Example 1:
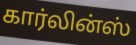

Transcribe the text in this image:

கார்லின்ஸ்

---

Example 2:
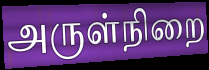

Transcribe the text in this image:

அருள்நிறை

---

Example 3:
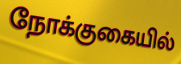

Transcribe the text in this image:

நோக்குகையில்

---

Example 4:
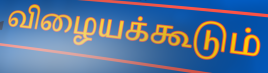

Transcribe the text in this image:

விழையக்கூடும்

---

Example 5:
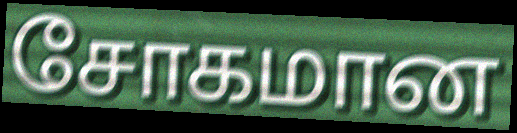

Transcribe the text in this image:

சோகமான